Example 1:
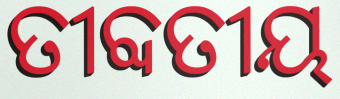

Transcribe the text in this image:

ତୀବ୍ଦତୀୟ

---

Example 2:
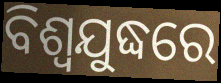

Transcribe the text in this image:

ବିଶ୍ଵଯୁଦ୍ଧରେ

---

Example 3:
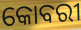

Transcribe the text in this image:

କୋବରୀ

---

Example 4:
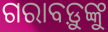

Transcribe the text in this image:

ଗରାବଡ଼ୁଙ୍କୁ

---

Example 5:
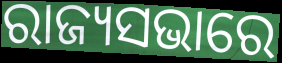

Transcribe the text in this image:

ରାଜ୍ୟସଭାରେ